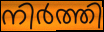
നിർത്തി